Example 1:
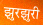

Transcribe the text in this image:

झुरझुरी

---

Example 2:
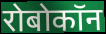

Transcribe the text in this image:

रोबोकॉन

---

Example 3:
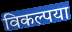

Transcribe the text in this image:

विकल्पया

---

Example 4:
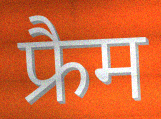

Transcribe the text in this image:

फ्रैम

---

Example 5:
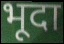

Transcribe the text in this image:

भूदा